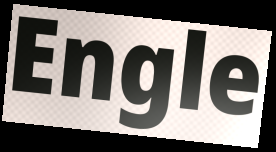
Engle